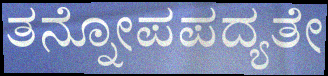
ತನ್ನೋಪಪದ್ಯತೇ